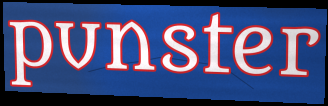
punster